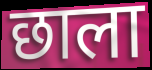
छाला